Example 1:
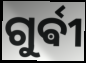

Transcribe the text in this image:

ଗୁର୍ଵୀ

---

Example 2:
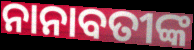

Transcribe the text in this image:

ନାନାବତୀଙ୍କ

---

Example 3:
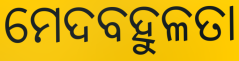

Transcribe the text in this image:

ମେଦବହୁଳତା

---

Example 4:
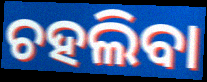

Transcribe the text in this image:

ଚହଲିବା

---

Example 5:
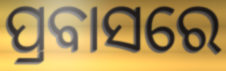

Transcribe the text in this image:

ପ୍ରବାସରେ